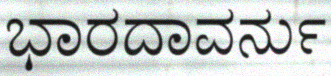
ಭಾರದಾವರ್ನು